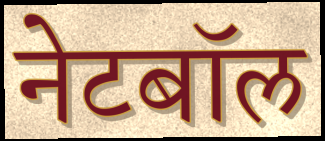
नेटबॉल